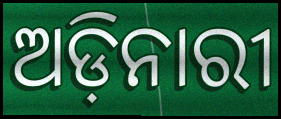
ଅଡ଼ିନାରୀ